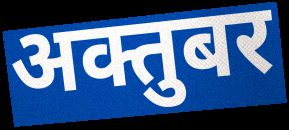
अक्तुबर